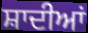
ਸ਼ਾਦੀਆਂ